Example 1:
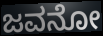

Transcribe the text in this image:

ಜವನೋ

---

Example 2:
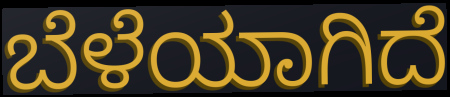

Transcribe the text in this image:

ಬೆಳೆಯಾಗಿದೆ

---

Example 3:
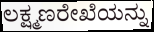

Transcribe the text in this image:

ಲಕ್ಷ್ಮಣರೇಖೆಯನ್ನು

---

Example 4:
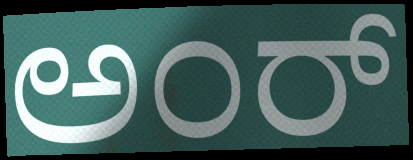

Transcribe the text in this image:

ಅಂರ್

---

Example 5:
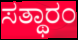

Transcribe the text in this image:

ಸತ್ಥಾರಂ